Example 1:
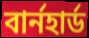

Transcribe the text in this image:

বার্নহার্ড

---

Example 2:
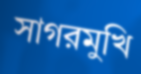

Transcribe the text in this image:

সাগরমুখি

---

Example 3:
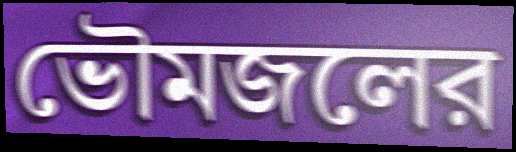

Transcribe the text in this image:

ভৌমজলের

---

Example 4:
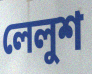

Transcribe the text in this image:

লেলুশ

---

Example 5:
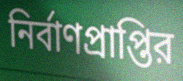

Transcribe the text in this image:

নির্বাণপ্রাপ্তির